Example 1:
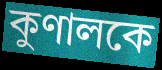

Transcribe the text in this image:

কুণালকে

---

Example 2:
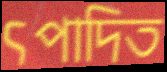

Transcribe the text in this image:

ৎপাদিত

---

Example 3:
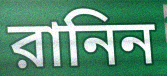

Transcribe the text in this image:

রানিন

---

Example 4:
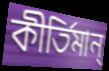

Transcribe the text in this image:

কীর্তিমান্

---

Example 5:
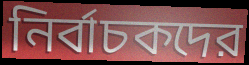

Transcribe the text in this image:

নির্বাচকদের